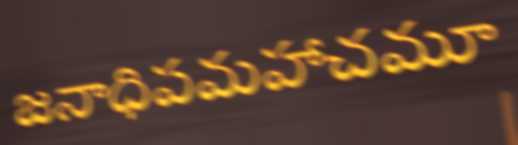
జనాధిపమహాచమూ